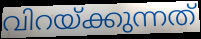
വിറയ്ക്കുന്നത്